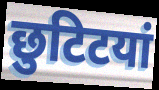
छुटिटयां